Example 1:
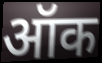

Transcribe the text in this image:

ऑक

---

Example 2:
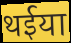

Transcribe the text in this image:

थईया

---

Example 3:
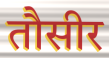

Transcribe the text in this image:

तौसीर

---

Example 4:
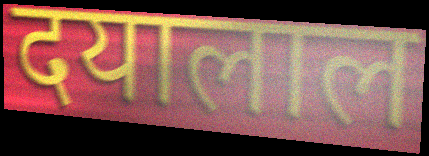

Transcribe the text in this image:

दयालाल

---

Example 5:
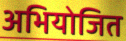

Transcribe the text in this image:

अभियोजित